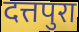
दत्तपुरा